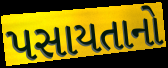
પસાયતાનો